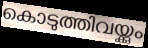
കൊടുത്തിവയ്ക്കും